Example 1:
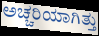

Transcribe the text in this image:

ಅಚ್ಚರಿಯಾಗಿತ್ತು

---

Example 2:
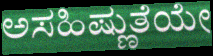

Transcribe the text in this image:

ಅಸಹಿಷ್ಣುತೆಯೇ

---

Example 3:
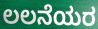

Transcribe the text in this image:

ಲಲನೆಯರ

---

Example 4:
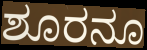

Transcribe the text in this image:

ಶೂರನೂ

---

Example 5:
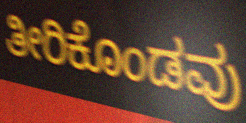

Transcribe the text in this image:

ತೀರಿಕೊಂಡವು